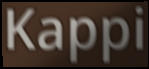
Kappi